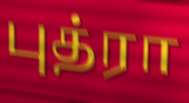
புத்ரா